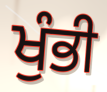
ਖੁੰਭੀ